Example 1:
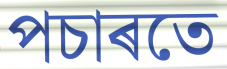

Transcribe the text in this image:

পচাৰতে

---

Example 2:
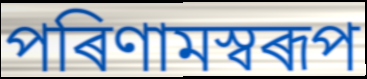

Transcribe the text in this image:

পৰিণামস্বৰূপ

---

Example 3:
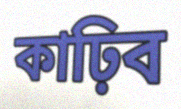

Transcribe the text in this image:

কাঢ়িব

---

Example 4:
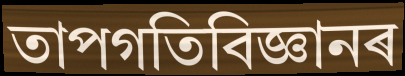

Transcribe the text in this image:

তাপগতিবিজ্ঞানৰ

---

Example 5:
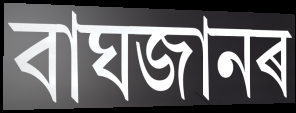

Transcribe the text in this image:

বাঘজানৰ